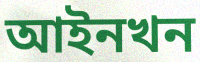
আইনখন